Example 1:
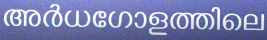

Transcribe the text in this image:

അർധഗോളത്തിലെ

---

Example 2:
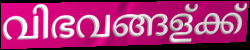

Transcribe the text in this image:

വിഭവങ്ങള്ക്ക്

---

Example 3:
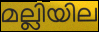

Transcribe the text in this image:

മല്ലിയില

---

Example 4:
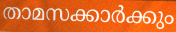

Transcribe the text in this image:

താമസക്കാർക്കും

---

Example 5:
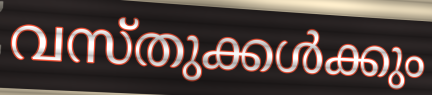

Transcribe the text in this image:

വസ്തുക്കൾക്കും